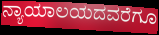
ನ್ಯಾಯಾಲಯದವರೆಗೂ